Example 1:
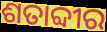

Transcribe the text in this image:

ଶତାବ୍ଦୀର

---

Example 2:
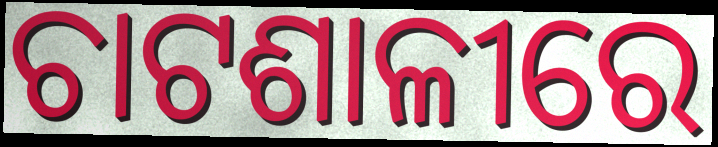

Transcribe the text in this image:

ଚାଟଶାଳୀରେ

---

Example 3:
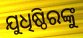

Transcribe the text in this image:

ଯୁଧିଷ୍ଠିରଙ୍କୁ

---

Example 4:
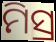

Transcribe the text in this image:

ମିସ୍ର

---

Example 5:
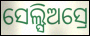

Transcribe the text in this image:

ସେଲ୍ସିଅସ୍ରେ